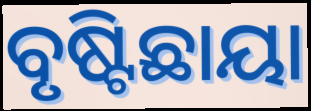
ବୃଷ୍ଟିଛାୟା